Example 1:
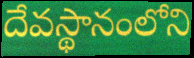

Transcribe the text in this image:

దేవస్థానంలోని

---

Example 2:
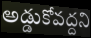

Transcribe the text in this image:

అడ్డుకోవద్దని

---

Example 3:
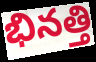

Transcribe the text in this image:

భినత్తి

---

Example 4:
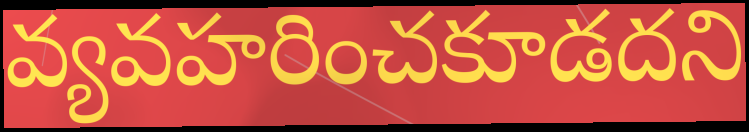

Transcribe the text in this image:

వ్యవహరించకూడదని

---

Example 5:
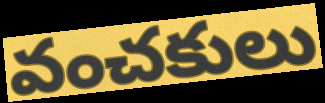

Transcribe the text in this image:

వంచకులు